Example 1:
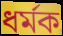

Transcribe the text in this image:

ধৰ্মক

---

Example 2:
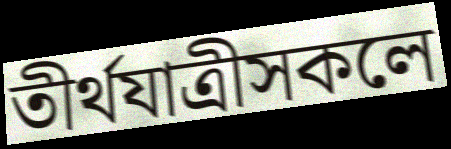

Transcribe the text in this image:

তীৰ্থযাত্ৰীসকলে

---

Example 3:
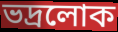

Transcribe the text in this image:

ভদ্ৰলোক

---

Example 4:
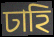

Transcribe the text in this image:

ঢাহি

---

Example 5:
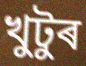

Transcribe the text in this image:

খুটুৰ